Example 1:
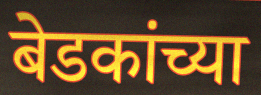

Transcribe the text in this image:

बेडकांच्या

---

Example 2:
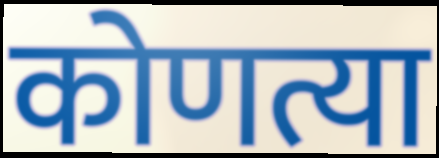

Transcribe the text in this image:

कोणत्या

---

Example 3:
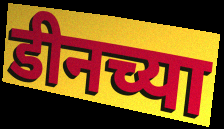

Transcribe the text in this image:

डीनच्या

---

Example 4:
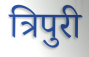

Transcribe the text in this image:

त्रिपुरी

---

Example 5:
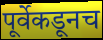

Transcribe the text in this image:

पूर्वेकडूनच